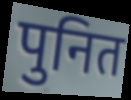
पुनित